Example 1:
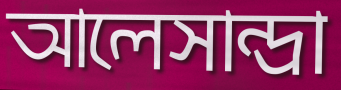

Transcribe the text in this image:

আলেসান্দ্রা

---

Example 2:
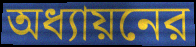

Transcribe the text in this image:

অধ্যায়নের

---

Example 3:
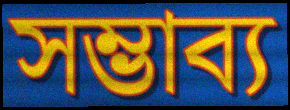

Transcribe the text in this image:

সম্ভাব্য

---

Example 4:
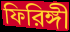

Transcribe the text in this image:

ফিরিঙ্গী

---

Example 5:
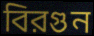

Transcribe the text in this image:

বিরগুন